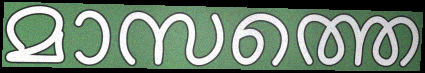
മാസത്തെ